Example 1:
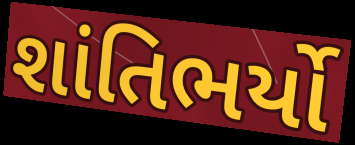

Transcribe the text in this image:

શાંતિભર્યો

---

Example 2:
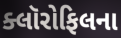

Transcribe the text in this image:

ક્લૉરોફિલના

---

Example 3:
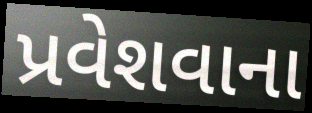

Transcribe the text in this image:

પ્રવેશવાના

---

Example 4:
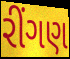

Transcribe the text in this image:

રીંગણ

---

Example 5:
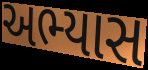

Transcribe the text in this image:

અભ્યાસ